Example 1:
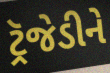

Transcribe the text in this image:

ટ્રૅજેડીને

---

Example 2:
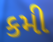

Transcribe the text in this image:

કમી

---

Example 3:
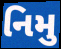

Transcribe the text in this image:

નિમુ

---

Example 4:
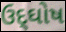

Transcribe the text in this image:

ઉદ્‌ઘોષ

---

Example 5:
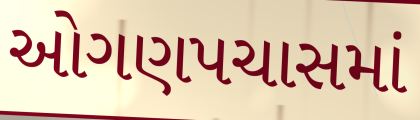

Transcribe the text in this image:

ઓગણપચાસમાં